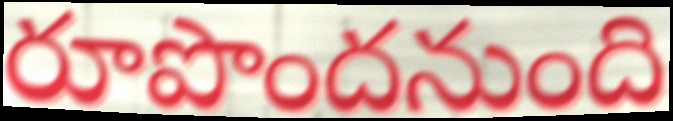
రూపొందనుంది